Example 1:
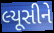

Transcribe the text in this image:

લ્યૂસીને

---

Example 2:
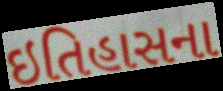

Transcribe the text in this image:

ઇતિહાસના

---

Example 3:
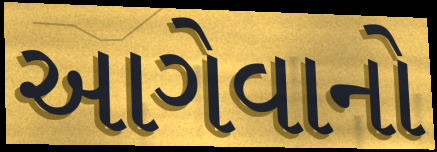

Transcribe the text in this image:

આગેવાનો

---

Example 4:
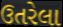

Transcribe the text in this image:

ઉતરેલા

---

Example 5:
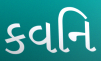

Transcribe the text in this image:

કવનિ